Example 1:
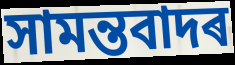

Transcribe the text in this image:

সামন্তবাদৰ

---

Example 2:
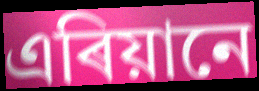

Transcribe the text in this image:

এৰিয়ানে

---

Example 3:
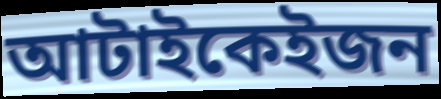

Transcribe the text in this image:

আটাইকেইজন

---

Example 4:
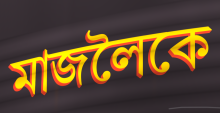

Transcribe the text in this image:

মাজলৈকে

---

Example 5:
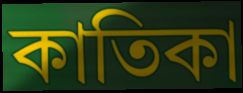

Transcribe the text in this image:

কাতিকা